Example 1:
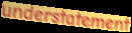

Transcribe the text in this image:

understatement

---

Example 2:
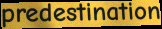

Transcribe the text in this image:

predestination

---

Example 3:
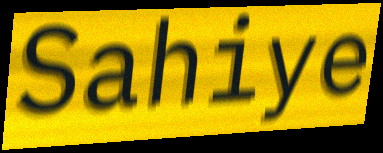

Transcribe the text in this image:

Sahiye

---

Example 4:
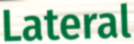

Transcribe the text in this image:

Lateral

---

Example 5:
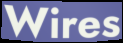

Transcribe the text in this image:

Wires